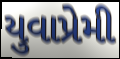
યુવાપ્રેમી